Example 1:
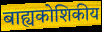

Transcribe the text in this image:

बाह्यकोशिकीय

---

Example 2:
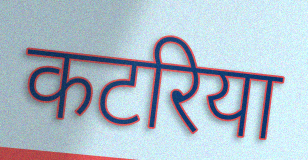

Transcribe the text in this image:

कटरिया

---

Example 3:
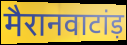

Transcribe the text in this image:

मैरानवाटांड़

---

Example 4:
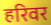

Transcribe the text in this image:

हरिवर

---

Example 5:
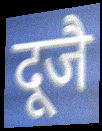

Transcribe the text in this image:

दूजै